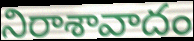
నిరాశావాదం